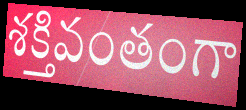
శక్తివంతంగా